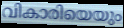
വികാരിയെയും